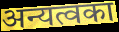
अन्यत्वका